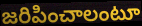
జరిపించాలంటూ